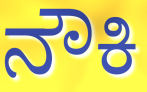
ನೌಕಿ